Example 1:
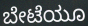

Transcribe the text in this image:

ಬೇಟೆಯೂ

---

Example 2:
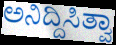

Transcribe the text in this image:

ಅನಿದ್ದಿಸಿತ್ವಾ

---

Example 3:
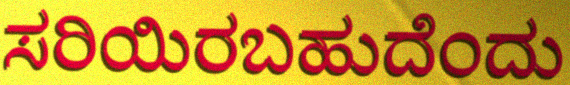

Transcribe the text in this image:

ಸರಿಯಿರಬಹುದೆಂದು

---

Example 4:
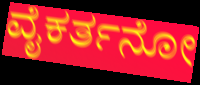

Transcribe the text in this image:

ವೈಕರ್ತನೋ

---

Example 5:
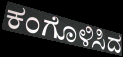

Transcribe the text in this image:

ಕಂಗೊಳಿಸಿದ